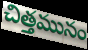
చిత్తమునం